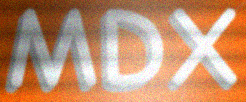
MDX